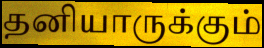
தனியாருக்கும்